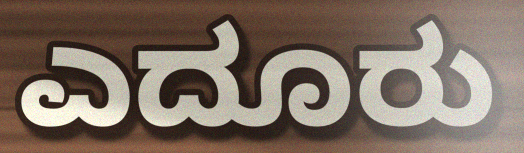
ಎದೂರು